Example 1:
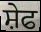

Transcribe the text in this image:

ਸ਼ੇਫ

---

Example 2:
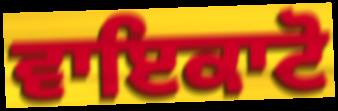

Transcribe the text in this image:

ਵਾਇਕਾਟੋ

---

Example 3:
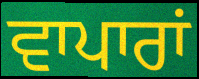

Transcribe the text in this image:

ਵਾਪਾਰਾਂ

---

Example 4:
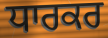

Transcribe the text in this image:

ਧਾਰਕਰ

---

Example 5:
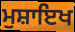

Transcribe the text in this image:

ਮੁਸ਼ਾਇਖ